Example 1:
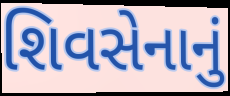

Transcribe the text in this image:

શિવસેનાનું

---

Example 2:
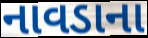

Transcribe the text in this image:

નાવડાના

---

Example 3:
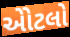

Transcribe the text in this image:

એોટલો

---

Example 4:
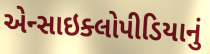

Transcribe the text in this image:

એન્સાઇક્લોપીડિયાનું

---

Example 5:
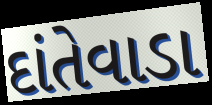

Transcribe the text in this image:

દાંતેવાડા